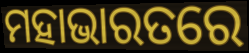
ମହାଭାରତରେ